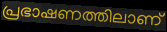
പ്രഭാഷണത്തിലാണ്